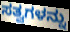
ಸತ್ವಗಳನ್ನು